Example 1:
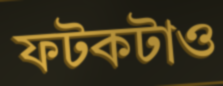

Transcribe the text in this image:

ফটকটাও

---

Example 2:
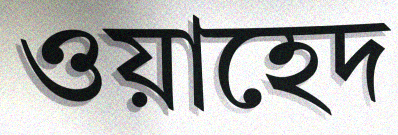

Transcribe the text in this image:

ওয়াহেদ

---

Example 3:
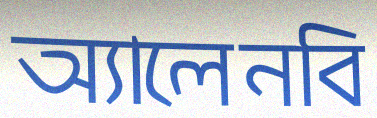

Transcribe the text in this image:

অ্যালেনবি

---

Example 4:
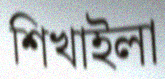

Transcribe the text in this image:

শিখাইলা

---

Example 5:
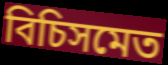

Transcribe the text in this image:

বিচিসমেত